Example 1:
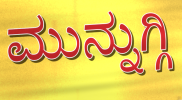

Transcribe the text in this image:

ಮುನ್ನುಗ್ಗಿ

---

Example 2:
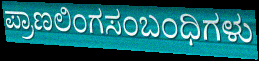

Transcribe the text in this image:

ಪ್ರಾಣಲಿಂಗಸಂಬಂಧಿಗಳು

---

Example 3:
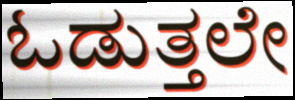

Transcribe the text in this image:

ಓಡುತ್ತಲೇ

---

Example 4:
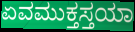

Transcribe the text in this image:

ಏವಮುಕ್ತಸ್ತಯಾ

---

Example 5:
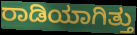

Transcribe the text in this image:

ರಾಡಿಯಾಗಿತ್ತು